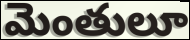
మెంతులూ